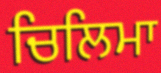
ਚਿਲਿਮਾ